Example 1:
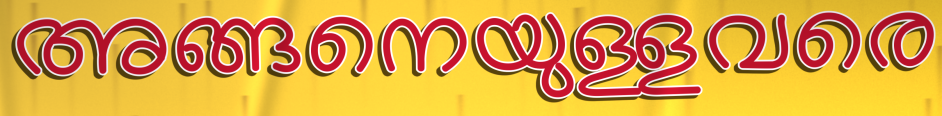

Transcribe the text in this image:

അങ്ങനെയുള്ളവരെ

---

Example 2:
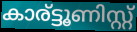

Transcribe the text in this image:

കാര്ട്ടൂണിസ്റ്റ്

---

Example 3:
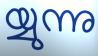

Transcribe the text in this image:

യ്യുന്നു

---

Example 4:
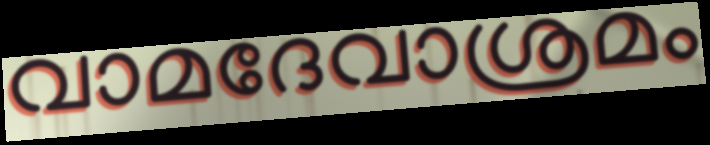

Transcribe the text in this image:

വാമദേവാശ്രമം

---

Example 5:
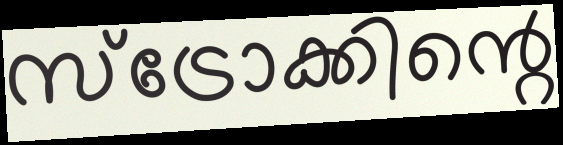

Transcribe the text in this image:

സ്ട്രോക്കിന്റെ